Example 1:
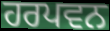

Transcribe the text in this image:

ਹਰਪਵਨ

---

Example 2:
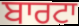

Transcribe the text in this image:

ਬਾਰਟਾ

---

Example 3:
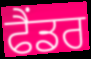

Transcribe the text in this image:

ਫੈਂਡਰ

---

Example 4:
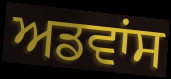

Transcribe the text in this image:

ਅਡਵਾਂਸ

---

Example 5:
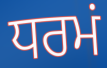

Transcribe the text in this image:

ਧਰਮਂ